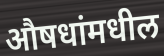
औषधांमधील